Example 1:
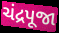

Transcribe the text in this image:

ચંદ્રપૂજા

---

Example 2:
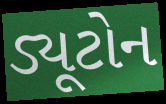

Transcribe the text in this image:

ડ્યૂટોન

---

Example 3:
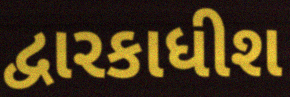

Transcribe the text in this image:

દ્વારકાધીશ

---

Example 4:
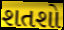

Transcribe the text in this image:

શતશો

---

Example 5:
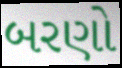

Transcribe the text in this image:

બરણો